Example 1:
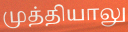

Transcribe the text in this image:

முத்தியாலு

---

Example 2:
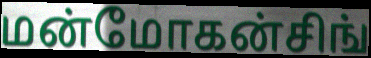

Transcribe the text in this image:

மன்மோகன்சிங்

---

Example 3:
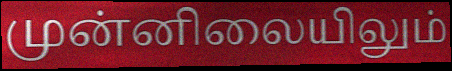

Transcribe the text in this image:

முன்னிலையிலும்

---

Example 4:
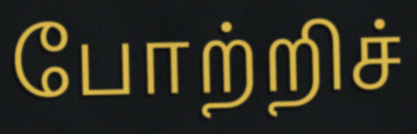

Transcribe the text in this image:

போற்றிச்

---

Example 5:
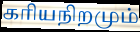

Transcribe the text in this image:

கரியநிறமும்